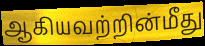
ஆகியவற்றின்மீது